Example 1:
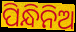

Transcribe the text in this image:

ପିନ୍ଧିନିଅ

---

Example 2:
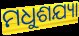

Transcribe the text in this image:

ମଧୁଶଯ୍ୟା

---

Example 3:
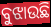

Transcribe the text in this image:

ବୁଝାଉଛି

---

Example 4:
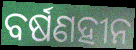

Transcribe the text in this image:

ବର୍ଷଣହୀନ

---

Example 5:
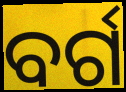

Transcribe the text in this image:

ବର୍ଗ